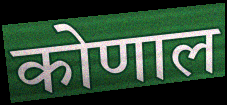
कोणाल